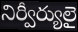
నిర్వీర్యులై